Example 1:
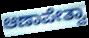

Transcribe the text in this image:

ಆಣಾಪೇತ್ವಾ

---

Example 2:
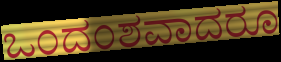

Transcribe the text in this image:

ಒಂದಂಶವಾದರೂ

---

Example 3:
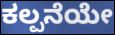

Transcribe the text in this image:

ಕಲ್ಪನೆಯೇ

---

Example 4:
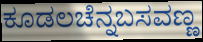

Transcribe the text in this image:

ಕೂಡಲಚೆನ್ನಬಸವಣ್ಣ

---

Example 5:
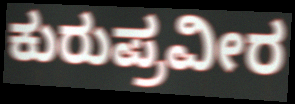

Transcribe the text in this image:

ಕುರುಪ್ರವೀರ